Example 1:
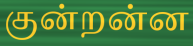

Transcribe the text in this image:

குன்றன்ன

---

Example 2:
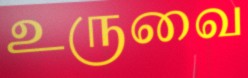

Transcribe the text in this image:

உருவை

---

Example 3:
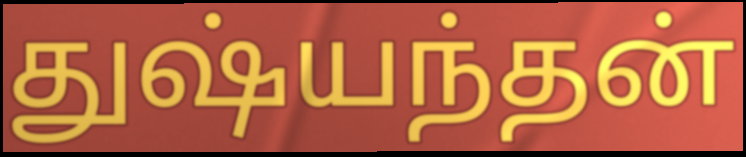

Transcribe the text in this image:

துஷ்யந்தன்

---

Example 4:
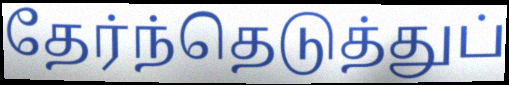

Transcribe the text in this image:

தேர்ந்தெடுத்துப்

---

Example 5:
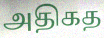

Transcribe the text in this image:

அதிகத